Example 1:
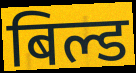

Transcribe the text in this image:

बिल्ड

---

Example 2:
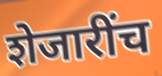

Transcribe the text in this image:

शेजारींच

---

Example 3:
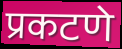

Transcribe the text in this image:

प्रकटणे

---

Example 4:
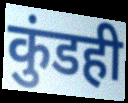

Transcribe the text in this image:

कुंडही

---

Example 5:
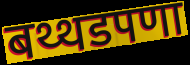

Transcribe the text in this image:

बथ्थडपणा